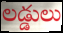
లడ్డులు